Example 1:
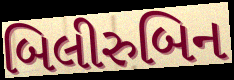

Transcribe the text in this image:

બિલીરુબિન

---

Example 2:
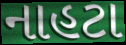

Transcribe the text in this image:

નાહટા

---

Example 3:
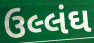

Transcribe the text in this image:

ઉલ્લંઘ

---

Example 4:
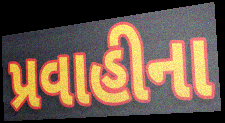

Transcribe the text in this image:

પ્રવાહીના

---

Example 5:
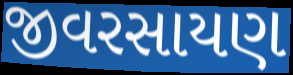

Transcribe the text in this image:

જીવરસાયણ